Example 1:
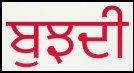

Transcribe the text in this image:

ਬੁਝਦੀ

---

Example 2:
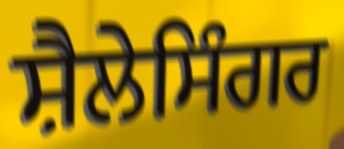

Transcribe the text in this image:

ਸ਼ੈਲੇਸਿੰਗਰ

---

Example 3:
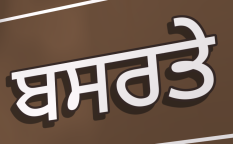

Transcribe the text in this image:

ਬਸਰਤੇ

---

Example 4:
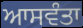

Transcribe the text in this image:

ਆਸਵੰਤਾ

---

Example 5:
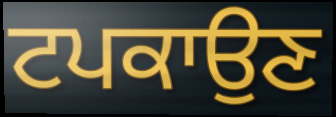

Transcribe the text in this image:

ਟਪਕਾਉਣ